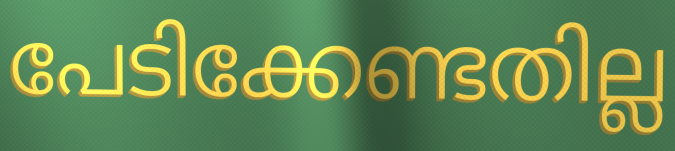
പേടിക്കേണ്ടതില്ല